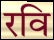
रवि